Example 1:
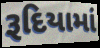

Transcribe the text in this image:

રૂદિયામાં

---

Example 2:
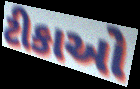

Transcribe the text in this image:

ટીકાઓ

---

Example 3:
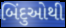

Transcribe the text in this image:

બિંદુઓથી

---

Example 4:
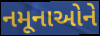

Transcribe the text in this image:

નમૂનાઓને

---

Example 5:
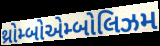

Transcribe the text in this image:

થ્રોમ્બોએમ્બોલિઝમ